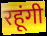
रहूंगी